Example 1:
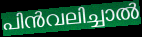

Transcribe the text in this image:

പിൻവലിച്ചാൽ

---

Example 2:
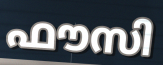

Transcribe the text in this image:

ഫൗസി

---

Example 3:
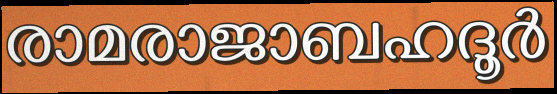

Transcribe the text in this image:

രാമരാജാബഹദൂർ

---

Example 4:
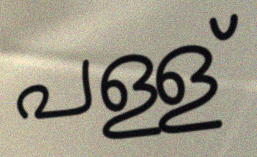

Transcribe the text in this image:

പള്ള്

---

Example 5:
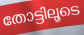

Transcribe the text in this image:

തോട്ടിലൂടെ